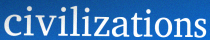
civilizations